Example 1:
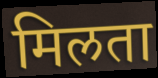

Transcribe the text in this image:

मिलता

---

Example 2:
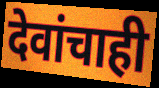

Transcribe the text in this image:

देवांचाही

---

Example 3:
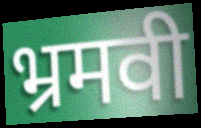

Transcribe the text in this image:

भ्रमवी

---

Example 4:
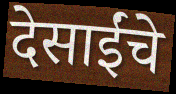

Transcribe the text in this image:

देसाईंचे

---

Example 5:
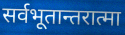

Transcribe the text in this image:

सर्वभूतान्तरात्मा